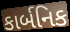
કાર્બનિક